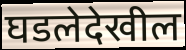
घडलेदेखील